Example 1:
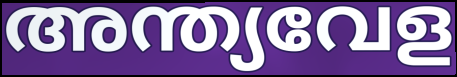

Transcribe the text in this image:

അന്ത്യവേള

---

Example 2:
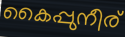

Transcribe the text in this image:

കൈപ്പുനീര്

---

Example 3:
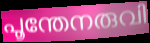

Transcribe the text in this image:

പൂന്തേനരുവി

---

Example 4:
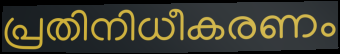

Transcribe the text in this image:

പ്രതിനിധീകരണം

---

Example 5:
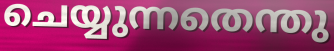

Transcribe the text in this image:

ചെയ്യുന്നതെന്തു